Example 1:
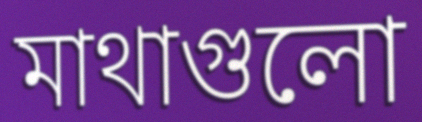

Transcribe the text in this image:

মাথাগুলো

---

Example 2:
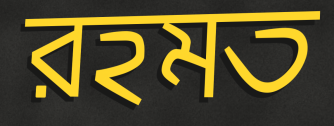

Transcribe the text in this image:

রহমত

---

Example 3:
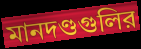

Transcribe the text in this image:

মানদণ্ডগুলির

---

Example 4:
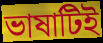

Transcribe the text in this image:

ভাষাটিই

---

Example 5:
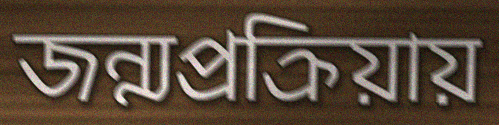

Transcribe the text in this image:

জন্মপ্রক্রিয়ায়